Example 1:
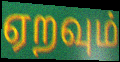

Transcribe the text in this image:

ஏறவும்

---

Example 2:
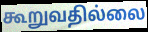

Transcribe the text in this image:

கூறுவதில்லை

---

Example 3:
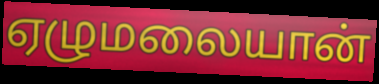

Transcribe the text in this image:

ஏழுமலையான்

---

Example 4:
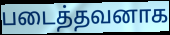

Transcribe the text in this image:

படைத்தவனாக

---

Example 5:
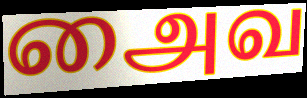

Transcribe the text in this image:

அைவ